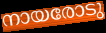
നായരോടു